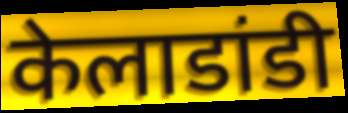
केलाडांडी